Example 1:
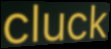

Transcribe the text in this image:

cluck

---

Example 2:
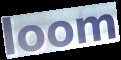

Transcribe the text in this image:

loom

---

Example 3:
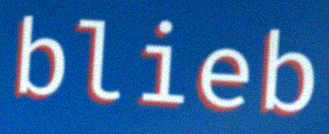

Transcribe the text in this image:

blieb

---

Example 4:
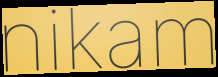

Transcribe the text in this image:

nikam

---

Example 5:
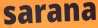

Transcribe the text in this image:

sarana